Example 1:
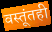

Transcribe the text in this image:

वस्तूंतही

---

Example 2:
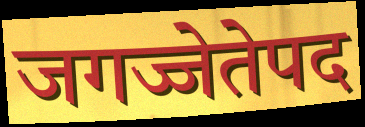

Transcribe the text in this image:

जगज्जेतेपद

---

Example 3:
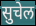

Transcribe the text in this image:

सुचेल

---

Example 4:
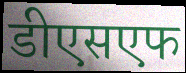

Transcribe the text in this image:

डीएसएफ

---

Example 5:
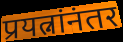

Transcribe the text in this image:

प्रयत्नांनंतर